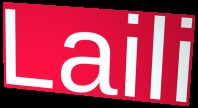
Laili